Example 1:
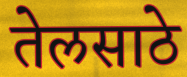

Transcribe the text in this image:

तेलसाठे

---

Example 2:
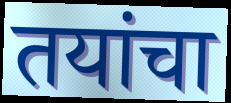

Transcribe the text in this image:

तयांचा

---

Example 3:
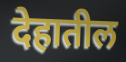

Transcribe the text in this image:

देहातील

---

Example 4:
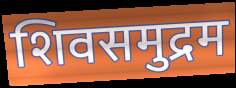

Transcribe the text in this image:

शिवसमुद्रम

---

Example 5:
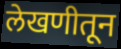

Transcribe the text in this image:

लेखणीतून